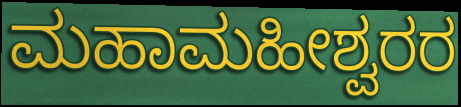
ಮಹಾಮಹೀಶ್ವರರ